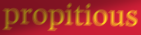
propitious